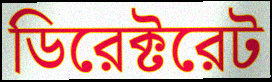
ডিরেক্টরেট